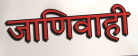
जाणिवाही